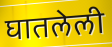
घातलेली